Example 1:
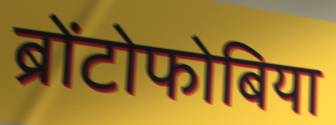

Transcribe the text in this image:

ब्रोंटोफोबिया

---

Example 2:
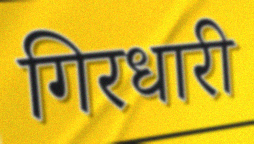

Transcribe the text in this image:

गिरधारी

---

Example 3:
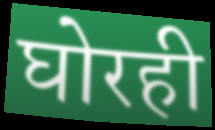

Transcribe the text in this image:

घोरही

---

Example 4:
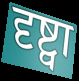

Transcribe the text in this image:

दृष्ट्वा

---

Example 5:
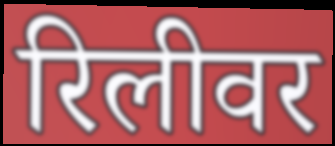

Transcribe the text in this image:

रिलीवर